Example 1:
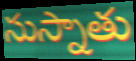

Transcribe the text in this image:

సుస్నాతు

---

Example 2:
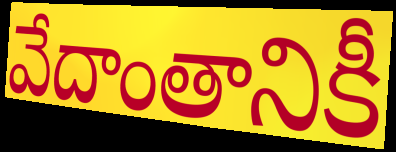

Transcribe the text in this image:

వేదాంతానికీ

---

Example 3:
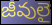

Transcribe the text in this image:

జీవులై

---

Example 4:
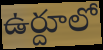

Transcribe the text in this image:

ఉర్దూలో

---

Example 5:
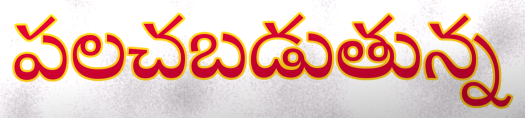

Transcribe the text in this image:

పలచబడుతున్న